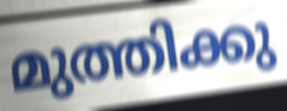
മുത്തിക്കു